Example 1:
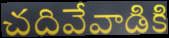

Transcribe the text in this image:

చదివేవాడికి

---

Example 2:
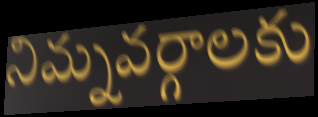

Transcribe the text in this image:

నిమ్నవర్గాలకు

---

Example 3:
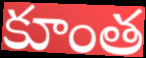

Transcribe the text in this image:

కూంత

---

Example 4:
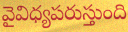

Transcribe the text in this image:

వైవిధ్యపరుస్తుంది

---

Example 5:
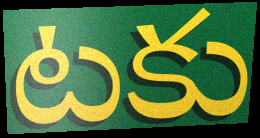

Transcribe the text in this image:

టకు